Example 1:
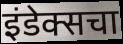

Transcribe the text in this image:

इंडेक्सचा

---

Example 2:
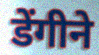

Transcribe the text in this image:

डेंगीने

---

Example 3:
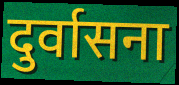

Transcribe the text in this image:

दुर्वासना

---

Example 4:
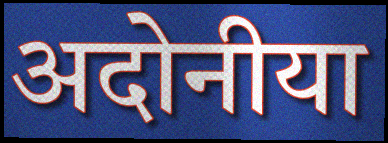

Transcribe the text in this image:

अदोनीया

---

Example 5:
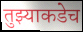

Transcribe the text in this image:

तुझ्याकडेच